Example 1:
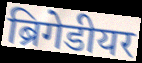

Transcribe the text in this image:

ब्रिगेडीयर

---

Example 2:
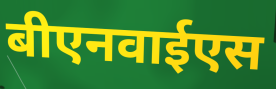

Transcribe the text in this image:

बीएनवाईएस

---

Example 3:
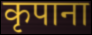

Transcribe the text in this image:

कृपाना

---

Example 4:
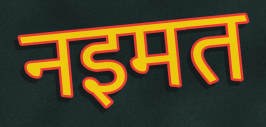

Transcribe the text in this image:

नइमत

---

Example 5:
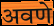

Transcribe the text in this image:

अवणे